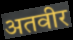
अतवीर